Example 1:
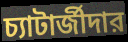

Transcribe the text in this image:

চ্যাটার্জীদার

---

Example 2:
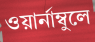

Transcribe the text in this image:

ওয়ার্নাম্বুলে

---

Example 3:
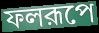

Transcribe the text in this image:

ফলরূপে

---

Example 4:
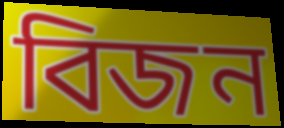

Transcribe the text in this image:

বিজন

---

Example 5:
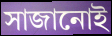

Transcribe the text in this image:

সাজানোই